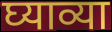
घ्याव्या